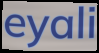
eyali